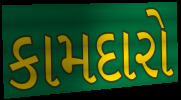
કામદારો